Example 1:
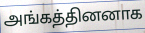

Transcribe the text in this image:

அங்கத்தினனாக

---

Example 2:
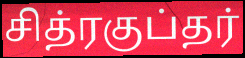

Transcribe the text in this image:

சித்ரகுப்தர்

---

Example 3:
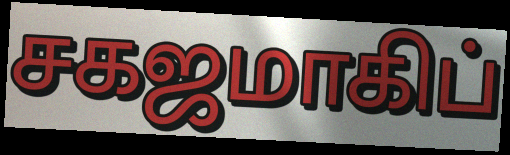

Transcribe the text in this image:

சகஜமாகிப்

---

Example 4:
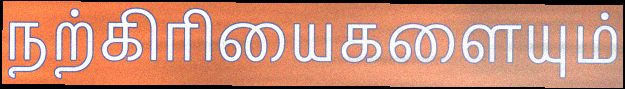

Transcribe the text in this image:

நற்கிரியைகளையும்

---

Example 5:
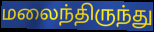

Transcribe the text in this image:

மலைந்திருந்து